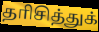
தரிசித்துக்